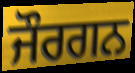
ਜੌਰਗਨ